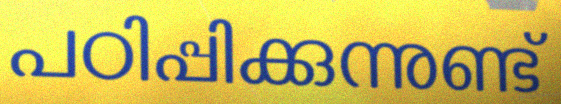
പഠിപ്പിക്കുന്നുണ്ട്